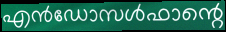
എൻഡോസൾഫാന്റെ